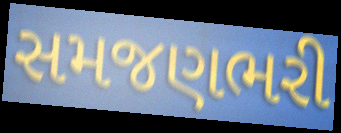
સમજણભરી